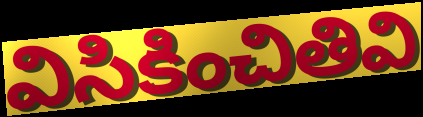
విసికించితివి